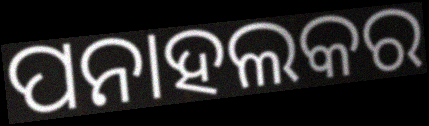
ପନାହଲକର